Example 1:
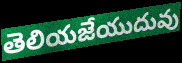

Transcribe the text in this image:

తెలియజేయుదువు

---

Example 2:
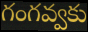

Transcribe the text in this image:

గంగవ్వకు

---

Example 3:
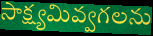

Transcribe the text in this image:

సాక్ష్యమివ్వగలను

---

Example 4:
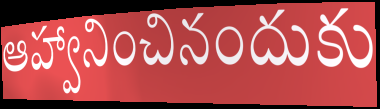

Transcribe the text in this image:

ఆహ్వానించినందుకు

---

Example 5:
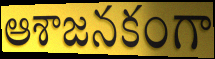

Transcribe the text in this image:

ఆశాజనకంగా